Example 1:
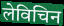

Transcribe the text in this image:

लेविचिन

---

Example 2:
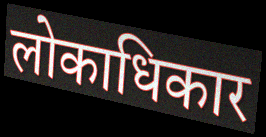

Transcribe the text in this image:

लोकाधिकार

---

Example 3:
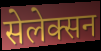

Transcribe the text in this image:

सेलेक्सन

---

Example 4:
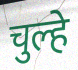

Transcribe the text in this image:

चुल्हे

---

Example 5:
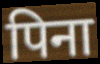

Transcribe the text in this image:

पिना